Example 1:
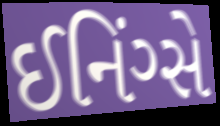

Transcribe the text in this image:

ઈનિંગ્સે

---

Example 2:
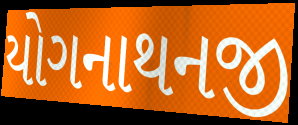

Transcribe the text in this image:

યોગનાથનજી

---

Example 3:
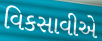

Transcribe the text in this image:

વિકસાવીએ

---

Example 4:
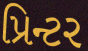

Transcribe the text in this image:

પ્રિન્ટર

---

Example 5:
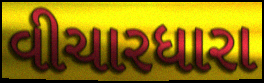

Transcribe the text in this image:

વીચારધારા